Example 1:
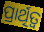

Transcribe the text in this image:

ପ୍ରାର୍ଥିତ୍ୱ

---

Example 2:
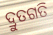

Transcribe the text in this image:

ଦ୍ରୁତଗତି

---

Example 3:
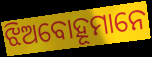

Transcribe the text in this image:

ଝିଅବୋହୂମାନେ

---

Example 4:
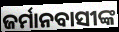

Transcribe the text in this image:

ଜର୍ମାନବାସୀଙ୍କ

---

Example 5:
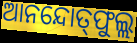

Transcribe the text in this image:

ଆନନ୍ଦୋତ୍‍ଫୁଲ୍ଲ